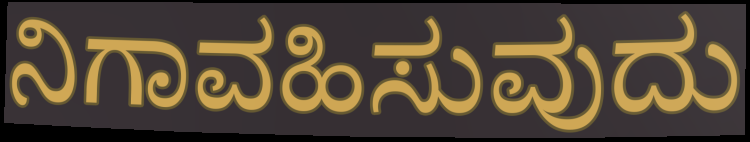
ನಿಗಾವಹಿಸುವುದು